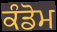
ਕੰਡੋਮ